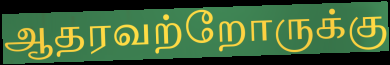
ஆதரவற்றோருக்கு